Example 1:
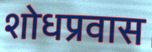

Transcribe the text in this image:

शोधप्रवास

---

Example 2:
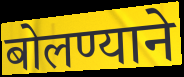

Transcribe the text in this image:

बोलण्याने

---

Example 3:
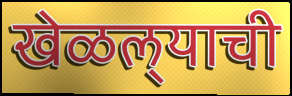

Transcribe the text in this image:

खेळल्याची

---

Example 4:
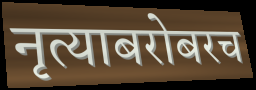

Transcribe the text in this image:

नृत्याबरोबरच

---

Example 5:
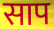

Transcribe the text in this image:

साप